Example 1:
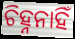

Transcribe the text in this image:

ଚିହ୍ନନାହିଁ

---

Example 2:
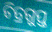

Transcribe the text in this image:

ଚିତ୍ରଗୁପ୍ତ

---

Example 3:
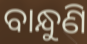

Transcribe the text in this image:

ବାନ୍ଧୁଣି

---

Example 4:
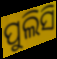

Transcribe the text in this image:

ପୁଲିସି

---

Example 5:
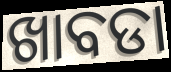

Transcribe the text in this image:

ଖାବଡା